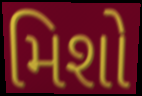
મિશો